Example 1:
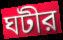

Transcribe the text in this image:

ঘটীর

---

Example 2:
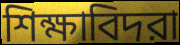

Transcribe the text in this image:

শিক্ষাবিদরা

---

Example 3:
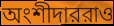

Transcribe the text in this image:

অংশীদাররাও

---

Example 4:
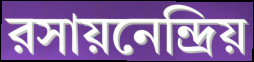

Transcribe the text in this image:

রসায়নেন্দ্রিয়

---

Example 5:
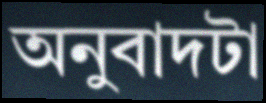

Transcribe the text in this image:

অনুবাদটা